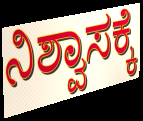
ನಿಶ್ವಾಸಕ್ಕೆ